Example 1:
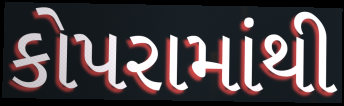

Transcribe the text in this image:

કોપરામાંથી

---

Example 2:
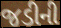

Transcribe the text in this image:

જડીની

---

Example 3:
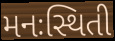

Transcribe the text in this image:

મનઃસ્થિતી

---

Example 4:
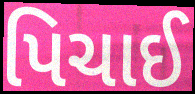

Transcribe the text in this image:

પિચાઈ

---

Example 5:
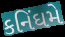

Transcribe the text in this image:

કનિંઘમે